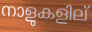
നാളുകളില്